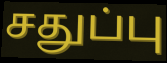
சதுப்பு